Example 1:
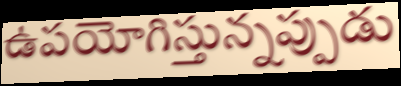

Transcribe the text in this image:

ఉపయోగిస్తున్నప్పుడు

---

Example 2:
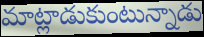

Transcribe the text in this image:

మాట్లాడుకుంటున్నాడు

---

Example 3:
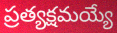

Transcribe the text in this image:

ప్రత్యక్షమయ్యే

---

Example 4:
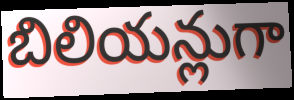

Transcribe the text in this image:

బిలియన్లుగా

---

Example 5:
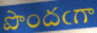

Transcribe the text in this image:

పొందఁగా